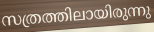
സത്രത്തിലായിരുന്നു